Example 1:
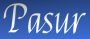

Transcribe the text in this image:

Pasur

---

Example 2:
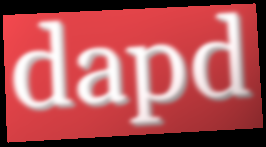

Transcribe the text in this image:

dapd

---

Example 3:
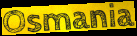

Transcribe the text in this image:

Osmania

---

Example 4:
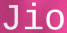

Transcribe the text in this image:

Jio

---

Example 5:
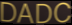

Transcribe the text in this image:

DADC